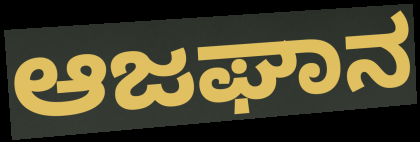
ಆಜಘಾನ